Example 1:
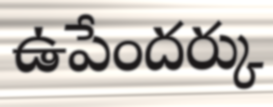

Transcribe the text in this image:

ఉపేందర్కు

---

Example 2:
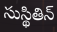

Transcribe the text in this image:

సుస్థితిన్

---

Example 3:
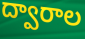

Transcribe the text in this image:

ద్వారాల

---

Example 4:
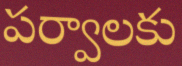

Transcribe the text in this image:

పర్వాలకు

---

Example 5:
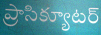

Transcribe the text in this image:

ప్రాసిక్యూటర్